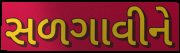
સળગાવીને